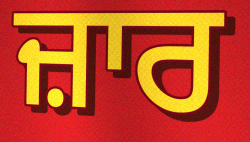
ਜ਼ਾਰ